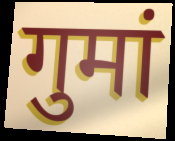
गुमां